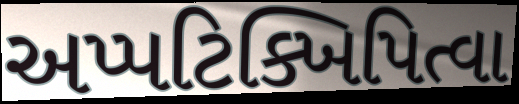
અપ્પટિક્ખિપિત્વા